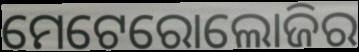
ମେଟେରୋଲୋଜିର